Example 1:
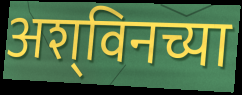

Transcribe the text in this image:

अश्विनच्या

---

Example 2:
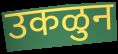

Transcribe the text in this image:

उकळुन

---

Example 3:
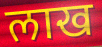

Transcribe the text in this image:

लाख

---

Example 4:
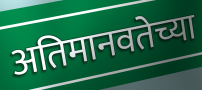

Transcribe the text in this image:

अतिमानवतेच्या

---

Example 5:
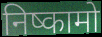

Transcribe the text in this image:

निष्कामो